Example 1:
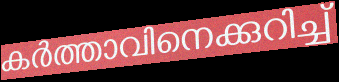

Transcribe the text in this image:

കർത്താവിനെക്കുറിച്ച്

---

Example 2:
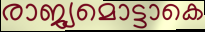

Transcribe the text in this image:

രാജ്യമൊട്ടാകെ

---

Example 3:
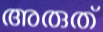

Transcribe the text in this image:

അരുത്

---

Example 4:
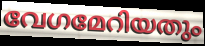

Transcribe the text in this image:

വേഗമേറിയതും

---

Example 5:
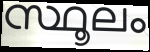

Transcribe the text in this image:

സ്ഥൂലം